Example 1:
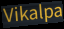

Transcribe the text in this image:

Vikalpa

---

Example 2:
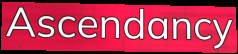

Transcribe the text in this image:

Ascendancy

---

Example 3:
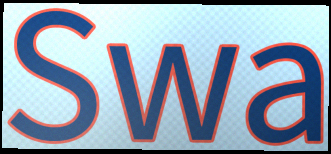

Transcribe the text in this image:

Swa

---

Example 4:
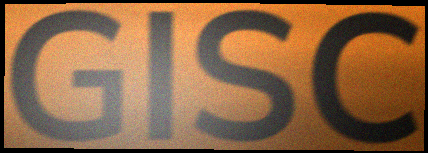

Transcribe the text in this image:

GISC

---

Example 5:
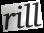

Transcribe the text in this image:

rill